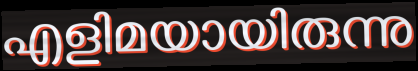
എളിമയായിരുന്നു